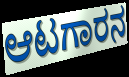
ಆಟಗಾರನ